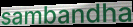
sambandha